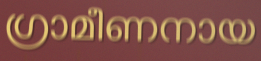
ഗ്രാമീണനായ